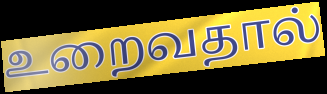
உறைவதால்